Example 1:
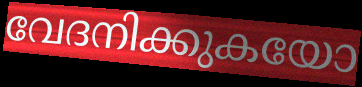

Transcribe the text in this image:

വേദനിക്കുകയോ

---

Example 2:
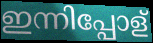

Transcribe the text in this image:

ഇന്നിപ്പോള്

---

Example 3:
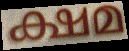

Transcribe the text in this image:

ക്ഷമ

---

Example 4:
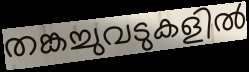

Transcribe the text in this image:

തങ്കച്ചുവടുകളിൽ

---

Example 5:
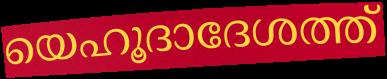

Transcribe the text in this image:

യെഹൂദാദേശത്ത്